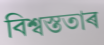
বিশ্বস্ততাৰ